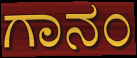
ಗಾನಂ